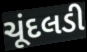
ચૂંદલડી